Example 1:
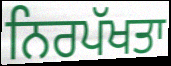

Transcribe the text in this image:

ਨਿਰਪੱਖਤਾ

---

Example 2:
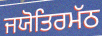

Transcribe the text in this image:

ਜਯੋਤਿਰਮੱਠ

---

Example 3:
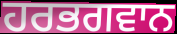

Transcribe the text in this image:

ਹਰਭਗਵਾਨ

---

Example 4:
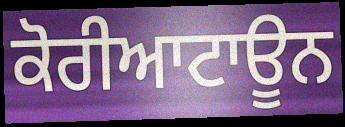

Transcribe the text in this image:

ਕੋਰੀਆਟਾਊਨ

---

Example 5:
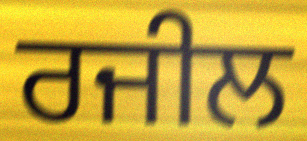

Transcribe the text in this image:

ਰਜੀਲ